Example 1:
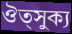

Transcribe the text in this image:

ঔত্সুক্য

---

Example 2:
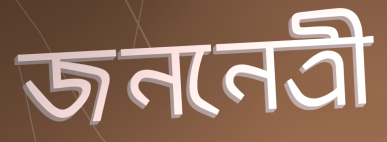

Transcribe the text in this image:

জননেত্রী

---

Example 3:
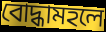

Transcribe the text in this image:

বোদ্ধামহলে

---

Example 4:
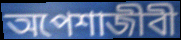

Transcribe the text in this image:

অপেশাজীবী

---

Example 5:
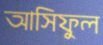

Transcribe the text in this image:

আসিফুল